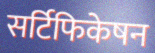
सर्टिफिकेषन